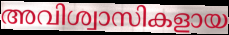
അവിശ്വാസികളായ